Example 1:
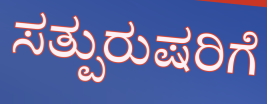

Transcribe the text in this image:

ಸತ್ಪುರುಷರಿಗೆ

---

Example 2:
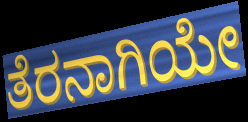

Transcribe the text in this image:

ತೆರನಾಗಿಯೇ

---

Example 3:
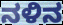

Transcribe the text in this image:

ನಳಿನ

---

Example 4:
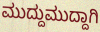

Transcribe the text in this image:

ಮುದ್ದುಮುದ್ದಾಗಿ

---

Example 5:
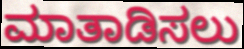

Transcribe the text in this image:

ಮಾತಾಡಿಸಲು